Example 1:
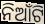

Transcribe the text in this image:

ନିଆଁଟି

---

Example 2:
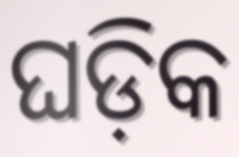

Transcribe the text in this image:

ଘଡ଼ିକ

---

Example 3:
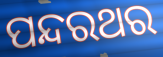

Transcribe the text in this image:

ପନ୍ଦରଥର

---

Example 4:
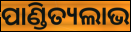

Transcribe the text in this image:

ପାଣ୍ଡିତ୍ୟଲାଭ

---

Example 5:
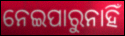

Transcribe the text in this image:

ନେଇପାରୁନାହିଁ